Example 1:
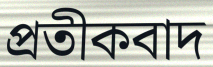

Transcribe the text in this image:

প্ৰতীকবাদ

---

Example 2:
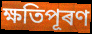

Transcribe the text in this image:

ক্ষতিপূৰণ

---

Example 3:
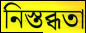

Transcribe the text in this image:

নিস্তব্ধতা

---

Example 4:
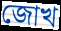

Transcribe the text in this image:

জোখ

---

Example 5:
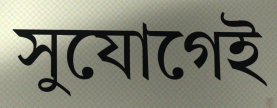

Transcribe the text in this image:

সুযোগেই